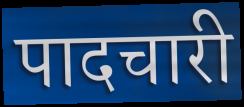
पादचारी